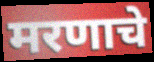
मरणाचे